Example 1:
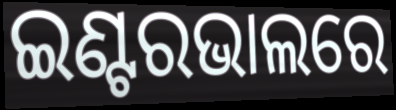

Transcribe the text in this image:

ଇଣ୍ଟରଭାଲରେ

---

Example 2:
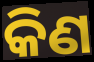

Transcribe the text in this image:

କିଣ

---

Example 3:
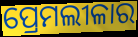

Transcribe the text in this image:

ପ୍ରେମଲୀଳାର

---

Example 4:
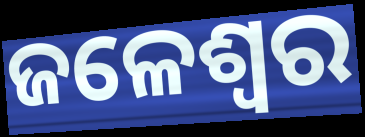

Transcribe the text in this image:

ଜଳେଶ୍ବର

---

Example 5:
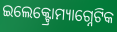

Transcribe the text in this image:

ଇଲେକ୍ଟ୍ରୋମ୍ୟାଗ୍ନେଟିକ